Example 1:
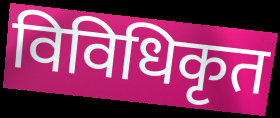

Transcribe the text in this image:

विविधिकृत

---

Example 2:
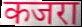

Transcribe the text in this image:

कजरा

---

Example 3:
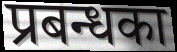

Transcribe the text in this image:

प्रबन्धका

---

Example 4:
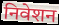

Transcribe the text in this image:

निवेशन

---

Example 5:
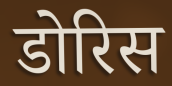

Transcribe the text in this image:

डोरिस